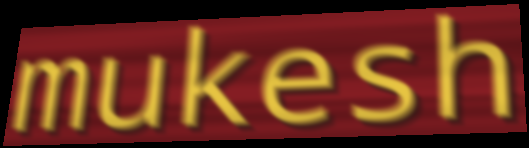
mukesh